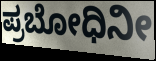
ಪ್ರಬೋಧಿನೀ